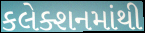
કલેક્શનમાંથી